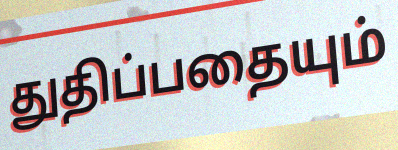
துதிப்பதையும்